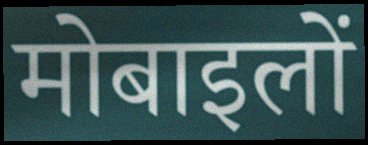
मोबाइलों